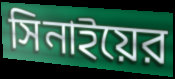
সিনাইয়ের